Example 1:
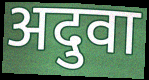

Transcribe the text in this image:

अदुवा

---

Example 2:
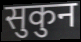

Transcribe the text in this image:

सुकुन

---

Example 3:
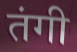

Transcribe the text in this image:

तंगी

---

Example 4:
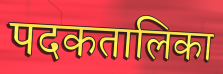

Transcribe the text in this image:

पदकतालिका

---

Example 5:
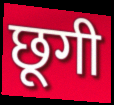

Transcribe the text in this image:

छूगी